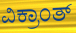
ವಿಕ್ರಾಂತ್